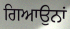
ਗਿਆਉਨਾਂ